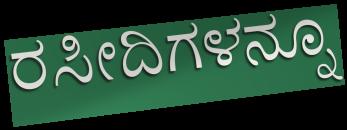
ರಸೀದಿಗಳನ್ನೂ